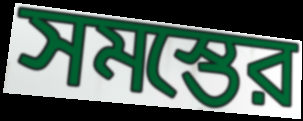
সমস্তের